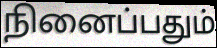
நினைப்பதும்